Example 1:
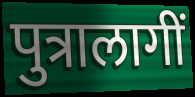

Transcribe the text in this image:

पुत्रालागीं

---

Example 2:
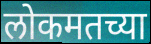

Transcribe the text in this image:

लोकमतच्या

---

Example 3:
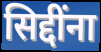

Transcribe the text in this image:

सिद्दींना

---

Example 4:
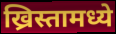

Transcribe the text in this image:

ख्रिस्तामध्ये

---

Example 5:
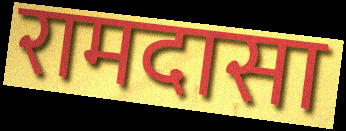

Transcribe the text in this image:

रामदासा